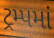
ટ્રમ્પમાં